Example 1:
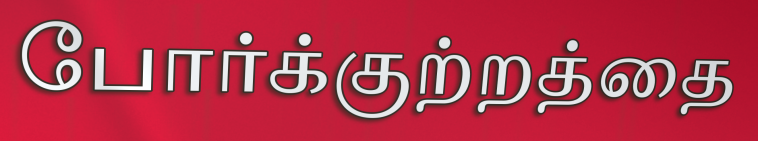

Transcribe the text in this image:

போர்க்குற்றத்தை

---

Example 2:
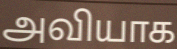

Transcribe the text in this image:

அவியாக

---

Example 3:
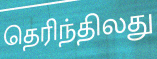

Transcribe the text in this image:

தெரிந்திலது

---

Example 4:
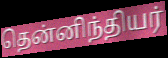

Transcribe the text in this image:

தென்னிந்தியர்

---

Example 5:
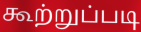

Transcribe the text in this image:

கூற்றுப்படி